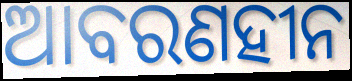
ଆବରଣହୀନ